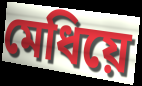
মেধিয়ে